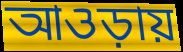
আওড়ায়